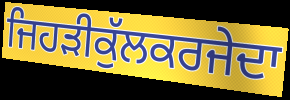
ਜਿਹੜੀਕੁੱਲਕਰਜੇਦਾ